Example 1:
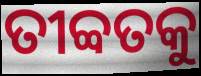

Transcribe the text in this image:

ତୀବ୍ବତକୁ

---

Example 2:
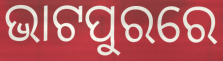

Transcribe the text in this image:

ଭାଟପୁରରେ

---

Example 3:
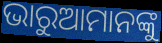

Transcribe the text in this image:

ଭାରୁଆମାନଙ୍କୁ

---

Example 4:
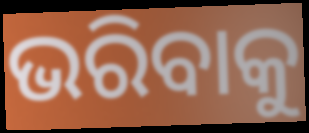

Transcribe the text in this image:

ଭରିବାକୁ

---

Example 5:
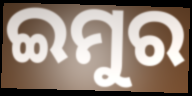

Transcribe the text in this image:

ଇମୁର